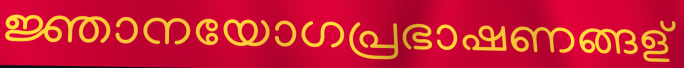
ജ്ഞാനയോഗപ്രഭാഷണങ്ങള്